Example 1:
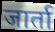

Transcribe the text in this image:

जार्ता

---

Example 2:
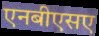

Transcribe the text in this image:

एनबीएसए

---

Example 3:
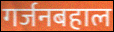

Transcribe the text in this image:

गर्जनबहाल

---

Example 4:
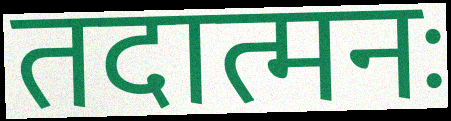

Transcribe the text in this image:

तदात्मनः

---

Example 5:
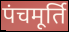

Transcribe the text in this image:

पंचमूर्ति